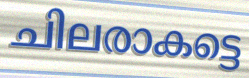
ചിലരാകട്ടെ